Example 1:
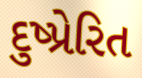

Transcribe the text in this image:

દુષ્પ્રેરિત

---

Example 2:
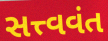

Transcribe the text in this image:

સત્ત્વવંત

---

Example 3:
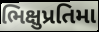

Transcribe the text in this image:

ભિક્ષુપ્રતિમા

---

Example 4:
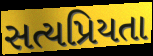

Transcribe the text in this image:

સત્યપ્રિયતા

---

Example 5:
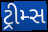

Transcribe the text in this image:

ટ્રીમ્સ